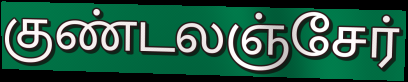
குண்டலஞ்சேர்